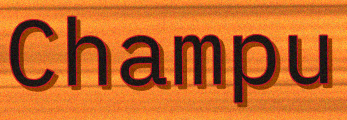
Champu